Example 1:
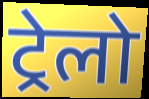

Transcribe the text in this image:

ट्रेलो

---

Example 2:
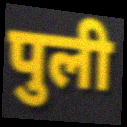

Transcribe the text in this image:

पुली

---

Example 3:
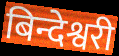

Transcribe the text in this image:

बिन्देश्वरी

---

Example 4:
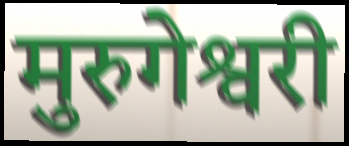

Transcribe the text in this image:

मुरुगेश्वरी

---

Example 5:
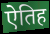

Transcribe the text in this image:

ऐतिह